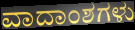
ವಾದಾಂಶಗಳು